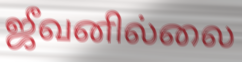
ஜீவனில்லை